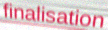
finalisation